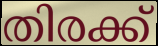
തിരക്ക്